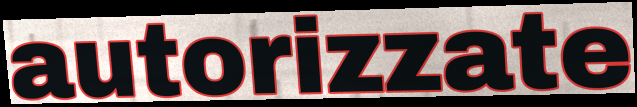
autorizzate